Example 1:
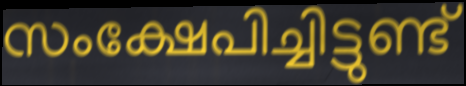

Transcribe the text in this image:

സംക്ഷേപിച്ചിട്ടുണ്ട്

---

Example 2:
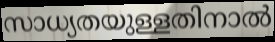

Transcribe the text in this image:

സാധ്യതയുള്ളതിനാൽ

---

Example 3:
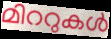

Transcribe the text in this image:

മിററുകൾ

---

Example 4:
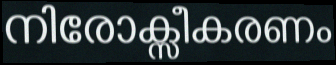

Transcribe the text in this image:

നിരോക്സീകരണം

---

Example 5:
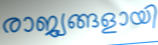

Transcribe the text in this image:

രാജ്യങ്ങളായി